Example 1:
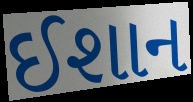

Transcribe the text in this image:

ઈશાન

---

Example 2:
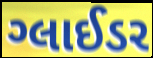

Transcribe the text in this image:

ગ્લાઈડર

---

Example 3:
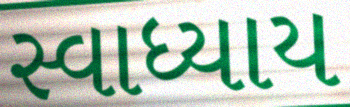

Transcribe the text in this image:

સ્વાધ્યાય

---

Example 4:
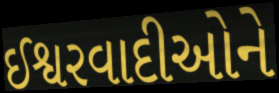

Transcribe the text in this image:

ઈશ્વરવાદીઓને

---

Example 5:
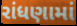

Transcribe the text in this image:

રાંધણામાં